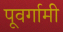
पूवर्गामी